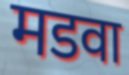
मडवा